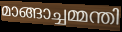
മാങ്ങാച്ചമ്മന്തി